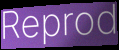
Reprod